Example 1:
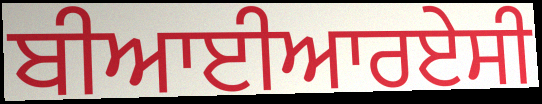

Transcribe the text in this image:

ਬੀਆਈਆਰਏਸੀ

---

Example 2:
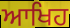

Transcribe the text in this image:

ਆਖਿਹ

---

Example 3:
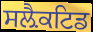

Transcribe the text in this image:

ਸਲ਼ੈਕਟਿਡ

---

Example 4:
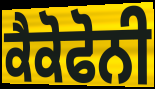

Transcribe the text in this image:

ਕੈਕੋਫੋਨੀ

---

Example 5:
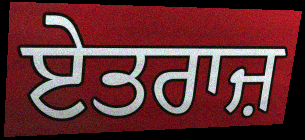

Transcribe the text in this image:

ਏਤਰਾਜ਼